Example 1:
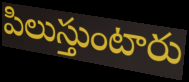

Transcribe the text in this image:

పిలుస్తుంటారు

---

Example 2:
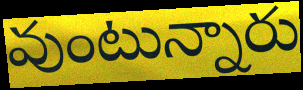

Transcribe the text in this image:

వుంటున్నారు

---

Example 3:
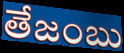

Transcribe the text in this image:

తేజంబు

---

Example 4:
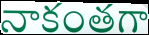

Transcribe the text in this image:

నాకంతగా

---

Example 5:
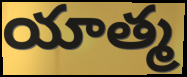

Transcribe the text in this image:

యాత్మ